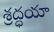
శ్రద్ధయా